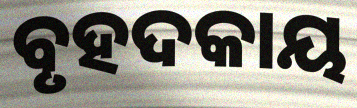
ବୃହଦକାୟ